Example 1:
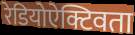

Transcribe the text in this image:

रेडियोऐक्टिवता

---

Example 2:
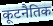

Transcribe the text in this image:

कूटनैतिक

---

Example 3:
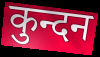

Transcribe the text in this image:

कुन्दन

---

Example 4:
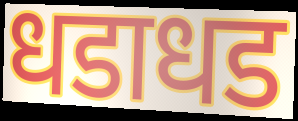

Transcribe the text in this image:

धडाधड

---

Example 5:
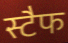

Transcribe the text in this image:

स्टैफ